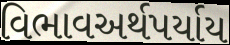
વિભાવઅર્થપર્યાય